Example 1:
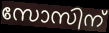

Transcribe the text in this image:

സോസിന്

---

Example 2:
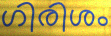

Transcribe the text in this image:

ഗിരിശം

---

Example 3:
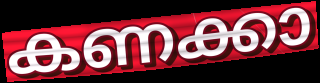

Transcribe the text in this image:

കണക്കാ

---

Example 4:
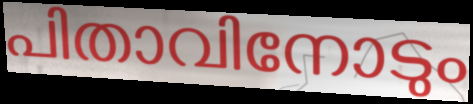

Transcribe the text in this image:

പിതാവിനോടും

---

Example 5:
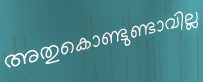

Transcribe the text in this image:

അതുകൊണ്ടുണ്ടാവില്ല